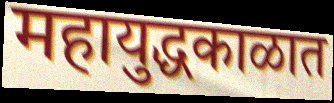
महायुद्धकाळात